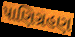
પાણિગ્રહણ